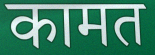
कामत